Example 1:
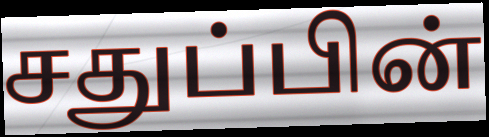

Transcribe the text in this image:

சதுப்பின்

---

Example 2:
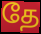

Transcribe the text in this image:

தே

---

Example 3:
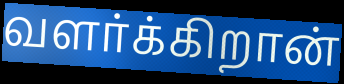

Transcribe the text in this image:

வளர்க்கிறான்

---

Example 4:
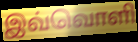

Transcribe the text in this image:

இவ்வொளி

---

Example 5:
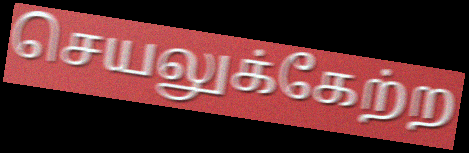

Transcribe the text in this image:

செயலுக்கேற்ற